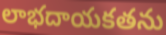
లాభదాయకతను